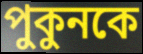
পুকুনকে